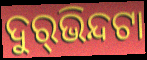
ଦୁର୍‌ଭିନ୍ଦଟା